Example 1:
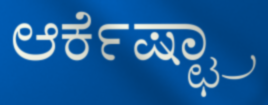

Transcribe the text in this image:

ಆರ್ಕೆಷ್ಟ್ರಾ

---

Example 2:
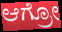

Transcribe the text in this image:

ಆಗ್ರೋ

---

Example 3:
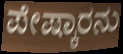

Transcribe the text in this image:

ಪೇಷ್ಕಾರನು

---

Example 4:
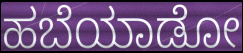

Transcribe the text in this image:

ಹಬೆಯಾಡೋ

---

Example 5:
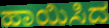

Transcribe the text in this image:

ಹಾಯಿಸಿದ